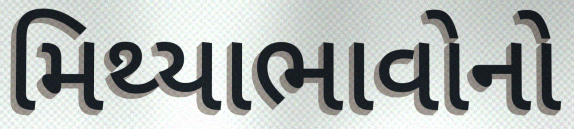
મિથ્યાભાવોનો